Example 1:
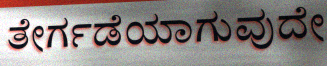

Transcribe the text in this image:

ತೇರ್ಗಡೆಯಾಗುವುದೇ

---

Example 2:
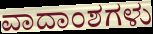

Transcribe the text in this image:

ವಾದಾಂಶಗಳು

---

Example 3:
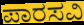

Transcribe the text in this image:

ಪಾರಸವಿ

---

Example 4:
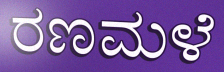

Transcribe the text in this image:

ರಣಮಳೆ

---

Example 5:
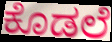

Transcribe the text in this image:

ಕೊಡಲೆ